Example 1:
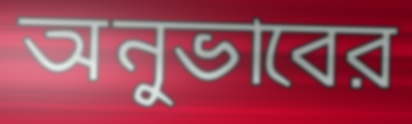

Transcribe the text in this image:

অনুভাবের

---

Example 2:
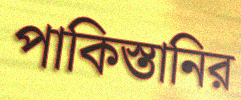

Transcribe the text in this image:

পাকিস্তানির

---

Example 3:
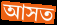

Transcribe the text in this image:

আসত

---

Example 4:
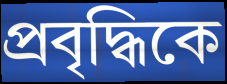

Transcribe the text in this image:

প্রবৃদ্ধিকে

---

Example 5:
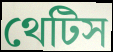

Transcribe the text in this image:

থেটিস